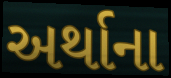
અર્થાના